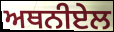
ਅਥਨੀਏਲ